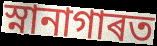
স্নানাগাৰত